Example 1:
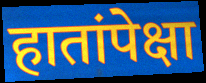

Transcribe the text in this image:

हातांपेक्षा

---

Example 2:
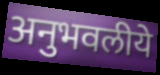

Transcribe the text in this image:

अनुभवलीये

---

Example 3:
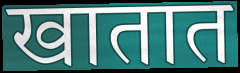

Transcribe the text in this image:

खातात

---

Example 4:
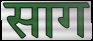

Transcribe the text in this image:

साग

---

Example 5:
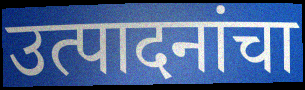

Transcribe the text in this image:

उत्पादनांचा